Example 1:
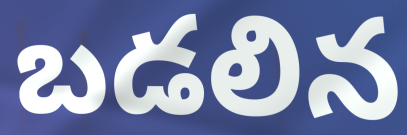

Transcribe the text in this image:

బడలిన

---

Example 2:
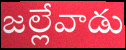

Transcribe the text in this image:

జల్లేవాడు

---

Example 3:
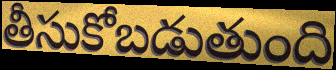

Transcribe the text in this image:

తీసుకోబడుతుంది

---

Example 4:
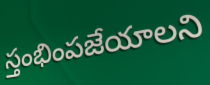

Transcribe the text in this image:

స్తంభింపజేయాలని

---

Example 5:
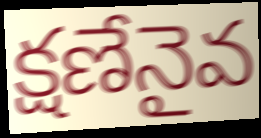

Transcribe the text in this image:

క్షణేనైవ